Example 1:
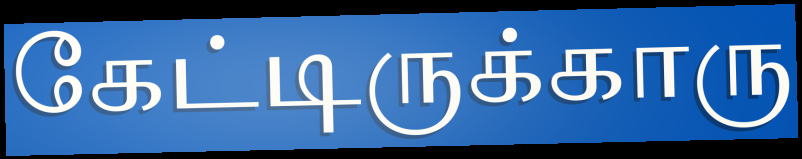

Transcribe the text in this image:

கேட்டிருக்காரு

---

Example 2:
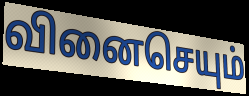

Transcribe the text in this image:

வினைசெயும்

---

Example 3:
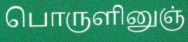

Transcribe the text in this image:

பொருளினுஞ்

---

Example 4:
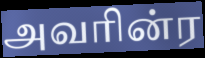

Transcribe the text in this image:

அவரின்ர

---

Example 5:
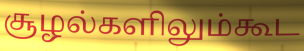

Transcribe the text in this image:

சூழல்களிலும்கூட